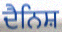
ਦੈਨਿਸ਼